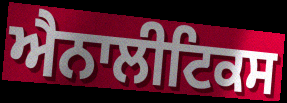
ਐਨਾਲੀਟਿਕਸ